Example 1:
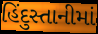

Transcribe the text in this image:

હિંદુસ્તાનીમાં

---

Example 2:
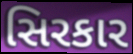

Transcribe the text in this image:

સિરકાર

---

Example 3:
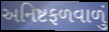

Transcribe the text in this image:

અનિષ્ટફળવાળું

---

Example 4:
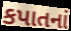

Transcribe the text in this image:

કપાતનાં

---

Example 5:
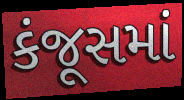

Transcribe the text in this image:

કંજૂસમાં